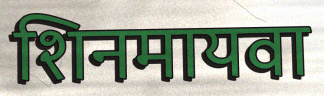
शिनमायवा